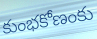
కుంభకోణంకు